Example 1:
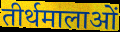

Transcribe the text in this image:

तीर्थमालाओं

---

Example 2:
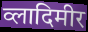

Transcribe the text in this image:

व्‍लादिमीर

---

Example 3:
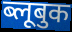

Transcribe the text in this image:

ब्लूबुक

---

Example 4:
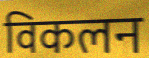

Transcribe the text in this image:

विकलन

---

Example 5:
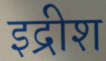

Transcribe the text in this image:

इद्रीश